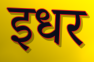
इधर